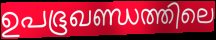
ഉപഭൂഖണ്ഡത്തിലെ